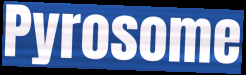
Pyrosome